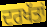
ਦਰਖੱਤਾਂ